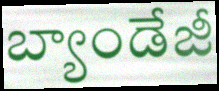
బ్యాండేజీ